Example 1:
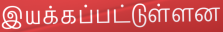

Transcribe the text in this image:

இயக்கப்பட்டுள்ளன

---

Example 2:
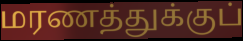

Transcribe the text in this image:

மரணத்துக்குப்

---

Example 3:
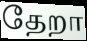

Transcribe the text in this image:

தேறா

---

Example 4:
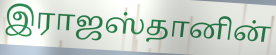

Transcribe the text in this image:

இராஜஸ்தானின்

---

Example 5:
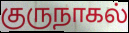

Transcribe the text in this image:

குருநாகல்